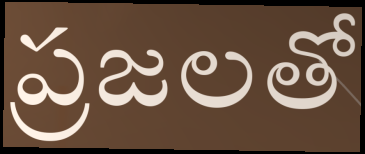
ప్రజలతో